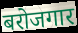
बरोजगार